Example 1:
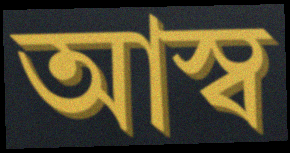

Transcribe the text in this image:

আস্ব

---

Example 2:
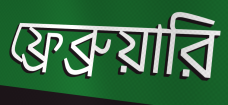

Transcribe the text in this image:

ফ্রেব্রুয়ারি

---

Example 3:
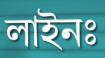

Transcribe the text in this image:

লাইনঃ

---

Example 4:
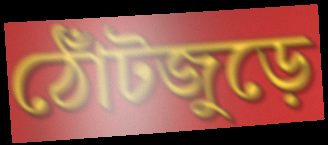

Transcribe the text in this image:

ঠোঁটজুড়ে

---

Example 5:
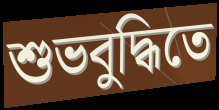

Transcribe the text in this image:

শুভবুদ্ধিতে